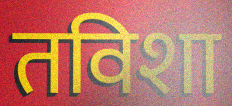
तविशा